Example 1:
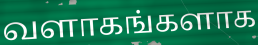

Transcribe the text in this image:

வளாகங்களாக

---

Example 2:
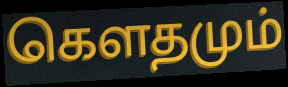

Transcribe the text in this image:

கெளதமும்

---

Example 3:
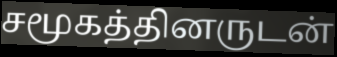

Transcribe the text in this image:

சமூகத்தினருடன்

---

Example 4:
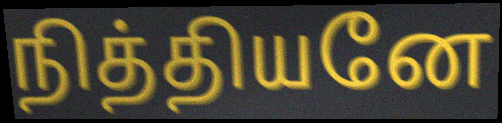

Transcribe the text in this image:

நித்தியனே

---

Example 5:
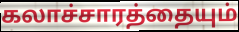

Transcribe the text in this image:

கலாச்சாரத்தையும்